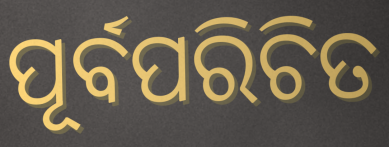
ପୂର୍ବପରିଚିତ